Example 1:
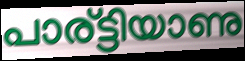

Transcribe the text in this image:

പാര്ട്ടിയാണു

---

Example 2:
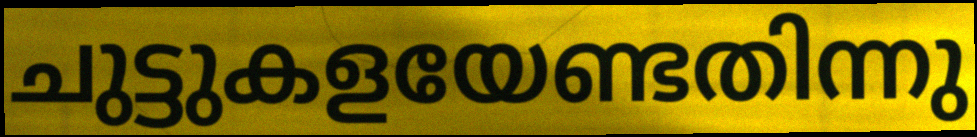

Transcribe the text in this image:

ചുട്ടുകളയേണ്ടതിന്നു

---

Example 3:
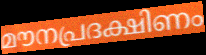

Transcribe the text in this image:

മൗനപ്രദക്ഷിണം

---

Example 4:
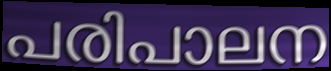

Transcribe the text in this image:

പരിപാലന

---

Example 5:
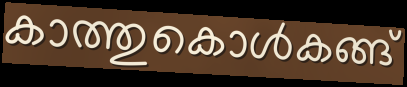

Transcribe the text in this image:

കാത്തുകൊൾകങ്ങ്